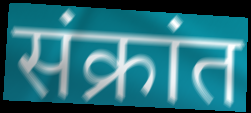
संक्रांत